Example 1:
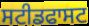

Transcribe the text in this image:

ਸਟੀਡਫਾਸਟ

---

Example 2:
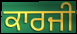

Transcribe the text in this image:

ਕਾਰਜੀ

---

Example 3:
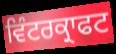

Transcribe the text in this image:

ਵਿੰਟਰਕ੍ਰਾਫਟ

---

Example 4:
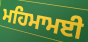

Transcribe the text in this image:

ਮਹਿਮਾਮਈ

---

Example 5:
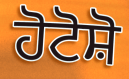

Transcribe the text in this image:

ਹੋਟੋਸ਼ੋ